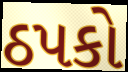
ઠપકો